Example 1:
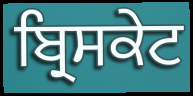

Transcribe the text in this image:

ਬ੍ਰਿਸਕੇਟ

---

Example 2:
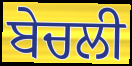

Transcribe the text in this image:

ਬੇਚਲੀ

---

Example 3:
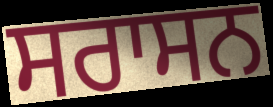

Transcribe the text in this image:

ਸਰਾਸਨ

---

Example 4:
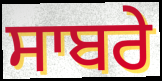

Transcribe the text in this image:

ਸਾਬਰੇ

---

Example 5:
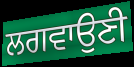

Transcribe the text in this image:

ਲਗਵਾਉਣੀ